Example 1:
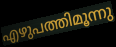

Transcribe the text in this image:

എഴുപത്തിമൂന്നു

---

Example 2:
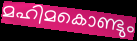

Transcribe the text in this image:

മഹിമകൊണ്ടും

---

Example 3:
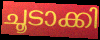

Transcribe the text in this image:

ചൂടാക്കി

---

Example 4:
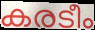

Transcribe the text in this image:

കരടീം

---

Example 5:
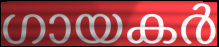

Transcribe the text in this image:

ഗായകർ